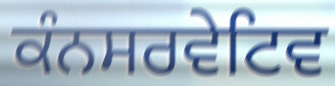
ਕੰਨਸਰਵੇਟਿਵ